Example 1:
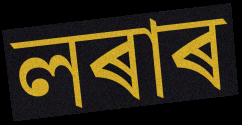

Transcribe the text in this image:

লৰাৰ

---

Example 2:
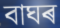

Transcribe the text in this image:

বাঘৰ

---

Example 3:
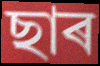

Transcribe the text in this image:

ছাৰ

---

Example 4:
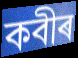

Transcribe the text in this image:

কবীৰ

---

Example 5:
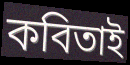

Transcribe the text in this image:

কবিতাই